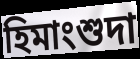
হিমাংশুদা